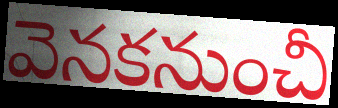
వెనకనుంచీ